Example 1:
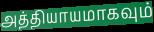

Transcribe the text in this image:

அத்தியாயமாகவும்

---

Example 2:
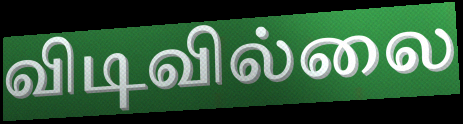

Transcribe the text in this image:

விடிவில்லை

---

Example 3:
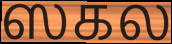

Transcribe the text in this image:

ஸகல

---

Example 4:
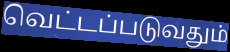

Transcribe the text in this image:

வெட்டப்படுவதும்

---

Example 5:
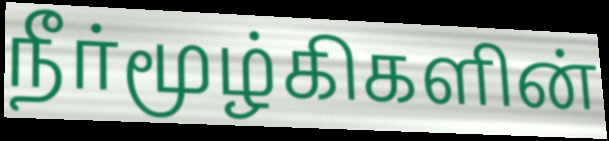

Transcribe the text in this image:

நீர்மூழ்கிகளின்